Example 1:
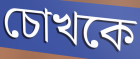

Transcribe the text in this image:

চোখকে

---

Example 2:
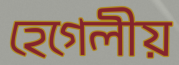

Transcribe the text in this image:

হেগেলীয়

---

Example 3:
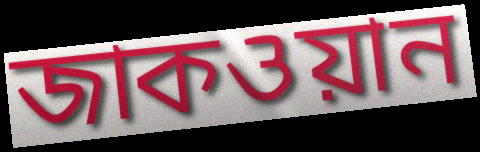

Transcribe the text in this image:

জাকওয়ান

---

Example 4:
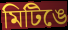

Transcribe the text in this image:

মিটিঙে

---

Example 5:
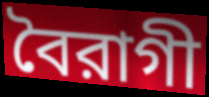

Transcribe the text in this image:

বৈরাগী